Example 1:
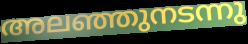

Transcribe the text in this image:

അലഞ്ഞുനടന്നു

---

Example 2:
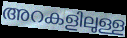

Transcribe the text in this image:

അറകളിലുള്ള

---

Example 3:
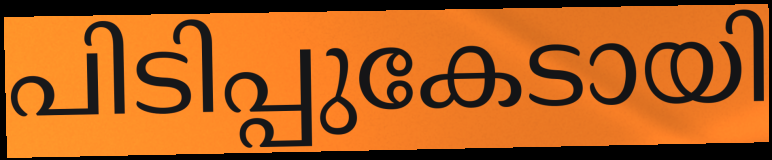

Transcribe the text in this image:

പിടിപ്പുകേടായി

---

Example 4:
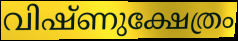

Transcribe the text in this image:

വിഷ്ണുക്ഷേത്രം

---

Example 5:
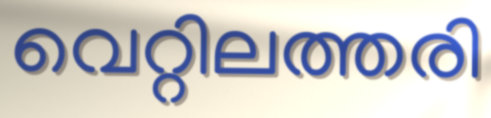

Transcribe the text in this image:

വെറ്റിലത്തരി